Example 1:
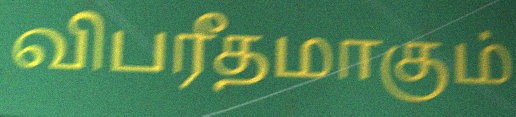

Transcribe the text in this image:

விபரீதமாகும்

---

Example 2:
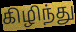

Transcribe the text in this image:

கிழிந்து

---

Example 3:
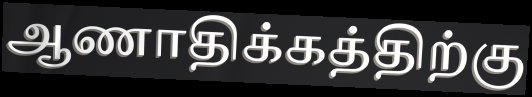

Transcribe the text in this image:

ஆணாதிக்கத்திற்கு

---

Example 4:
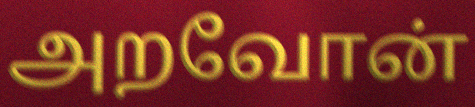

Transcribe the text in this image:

அறவோன்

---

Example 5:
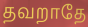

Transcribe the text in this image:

தவறாதே